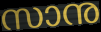
സാനു